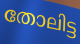
തോലിട്ട